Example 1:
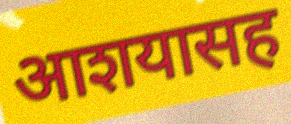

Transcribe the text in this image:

आशयासह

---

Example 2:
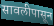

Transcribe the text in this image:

सावलीपासून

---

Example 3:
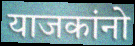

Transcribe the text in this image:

याजकांनो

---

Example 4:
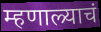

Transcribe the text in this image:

म्हणाल्याचं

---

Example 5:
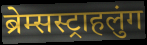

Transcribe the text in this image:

ब्रेम्सस्ट्राहलुंग